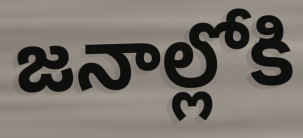
జనాల్లోకి